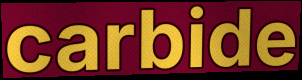
carbide